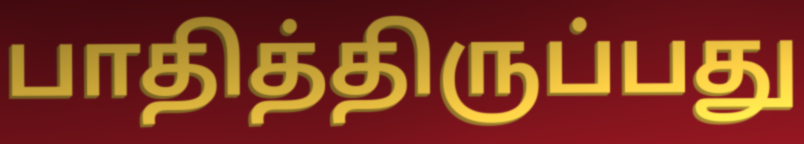
பாதித்திருப்பது